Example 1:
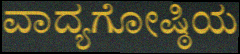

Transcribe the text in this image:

ವಾದ್ಯಗೋಷ್ಠಿಯ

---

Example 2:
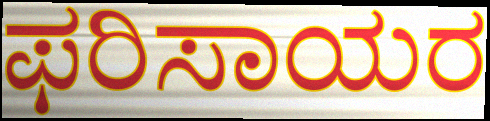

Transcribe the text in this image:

ಫರಿಸಾಯರ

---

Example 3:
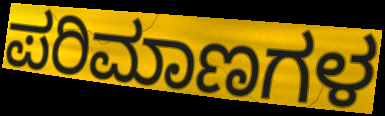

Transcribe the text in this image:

ಪರಿಮಾಣಗಳ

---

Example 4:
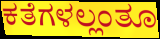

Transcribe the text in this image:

ಕತೆಗಳಲ್ಲಂತೂ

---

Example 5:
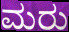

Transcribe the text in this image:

ಮರು